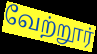
வேற்றூர்